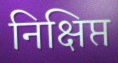
निक्षिप्त